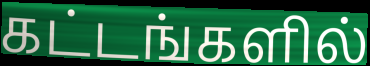
கட்டங்களில்